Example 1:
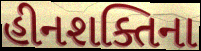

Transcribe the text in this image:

હીનશક્તિના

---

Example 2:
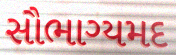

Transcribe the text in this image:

સૌભાગ્યમદ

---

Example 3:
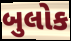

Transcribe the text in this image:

બુલોક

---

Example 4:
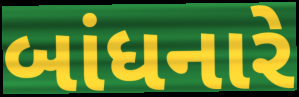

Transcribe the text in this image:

બાંધનારે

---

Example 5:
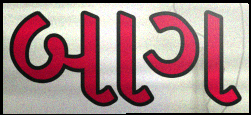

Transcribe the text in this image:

બાગ